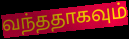
வந்ததாகவும்